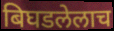
बिघडलेलाच